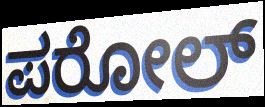
ಪರೋಲ್